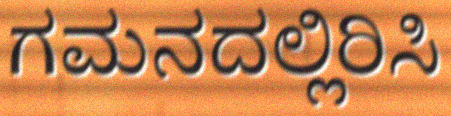
ಗಮನದಲ್ಲಿರಿಸಿ